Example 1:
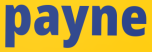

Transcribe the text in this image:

payne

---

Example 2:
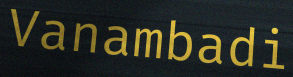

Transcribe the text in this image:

Vanambadi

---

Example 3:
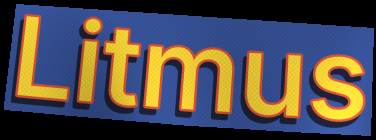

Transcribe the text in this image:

Litmus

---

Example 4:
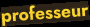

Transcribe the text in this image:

professeur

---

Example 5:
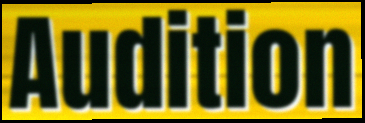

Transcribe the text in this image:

Audition